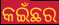
କଇଁଛର